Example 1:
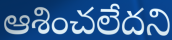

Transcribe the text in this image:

ఆశించలేదని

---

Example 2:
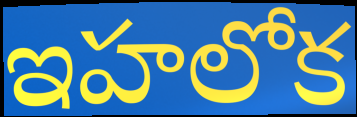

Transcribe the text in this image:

ఇహలోక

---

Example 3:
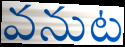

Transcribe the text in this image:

వనుట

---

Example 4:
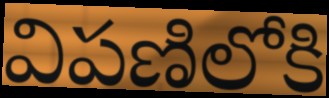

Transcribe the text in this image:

విపణిలోకి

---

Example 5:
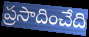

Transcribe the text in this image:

ప్రసాదించేది